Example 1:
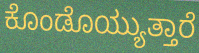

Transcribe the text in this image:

ಕೊಂಡೊಯ್ಯುತ್ತಾರೆ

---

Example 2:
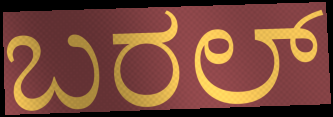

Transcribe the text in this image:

ಬರಲ್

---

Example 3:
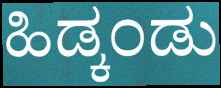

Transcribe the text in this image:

ಹಿಡ್ಕಂಡು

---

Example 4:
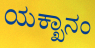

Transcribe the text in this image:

ಯಕ್ಖಾನಂ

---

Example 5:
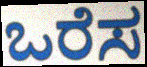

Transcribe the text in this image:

ಒರೆಸ